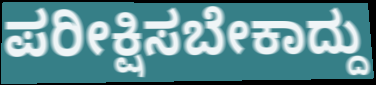
ಪರೀಕ್ಷಿಸಬೇಕಾದ್ದು